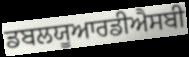
ਡਬਲਯੂਆਰਡੀਐਸਬੀ